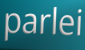
parlei